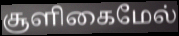
சூளிகைமேல்